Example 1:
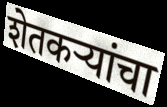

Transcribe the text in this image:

शेतकऱ्यांचा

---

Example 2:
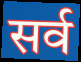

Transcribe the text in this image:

सर्व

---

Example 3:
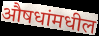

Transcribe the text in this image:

औषधांमधील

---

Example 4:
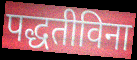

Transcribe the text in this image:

पद्धतीविना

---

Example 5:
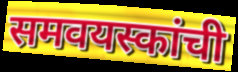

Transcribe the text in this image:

समवयस्कांची